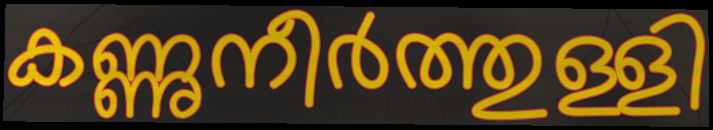
കണ്ണുനീർത്തുള്ളി